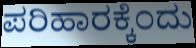
ಪರಿಹಾರಕ್ಕೆಂದು